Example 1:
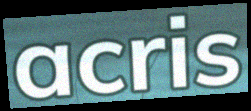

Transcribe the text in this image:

acris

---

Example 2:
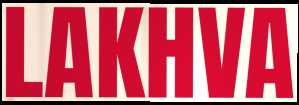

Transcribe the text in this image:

LAKHVA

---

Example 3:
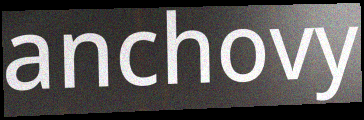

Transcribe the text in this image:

anchovy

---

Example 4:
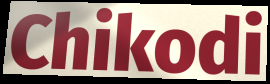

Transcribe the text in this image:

Chikodi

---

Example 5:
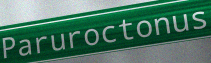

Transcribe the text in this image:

Paruroctonus